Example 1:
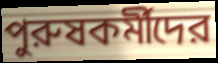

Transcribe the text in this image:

পুরুষকর্মীদের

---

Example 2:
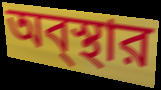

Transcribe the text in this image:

অব্স্থার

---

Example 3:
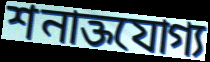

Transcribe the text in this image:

শনাক্তযোগ্য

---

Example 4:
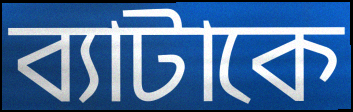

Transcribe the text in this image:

ব্যাটাকে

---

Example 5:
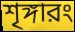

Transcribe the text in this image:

শৃঙ্গারং